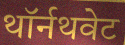
थॉर्नथवेट